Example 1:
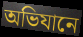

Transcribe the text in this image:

অভিযানে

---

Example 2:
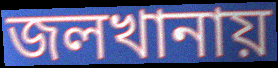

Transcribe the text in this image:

জলখানায়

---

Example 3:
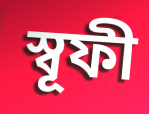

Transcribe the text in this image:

স্বূফী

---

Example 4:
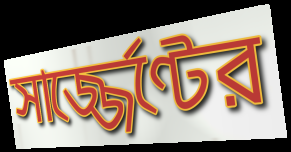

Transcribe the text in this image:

সার্জ্জেণ্টের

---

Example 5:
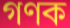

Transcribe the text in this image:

গণক